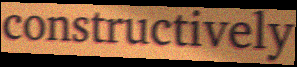
constructively